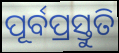
ପୂର୍ବପ୍ରସ୍ତୁତି